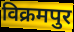
विक्रमपुर